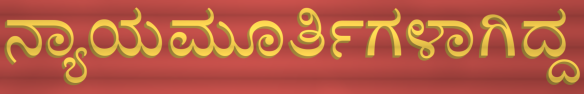
ನ್ಯಾಯಮೂರ್ತಿಗಳಾಗಿದ್ದ